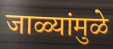
जाळ्यांमुळे